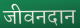
जीवनदान